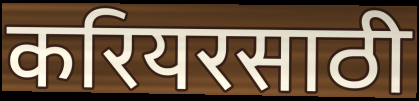
करियरसाठी